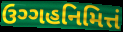
ઉગ્ગહનિમિત્તં